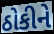
ઠોકીને